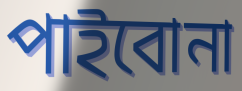
পাইবোনা